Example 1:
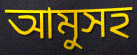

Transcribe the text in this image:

আমুসহ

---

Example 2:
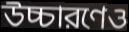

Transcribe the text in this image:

উচ্চারণেও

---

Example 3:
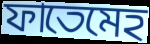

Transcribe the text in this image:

ফাতেমেহ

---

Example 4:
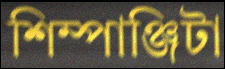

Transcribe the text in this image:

শিম্পাঞ্জিটা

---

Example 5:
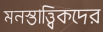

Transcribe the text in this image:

মনস্তাত্ত্বিকদের